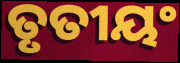
ତୃତୀୟଂ